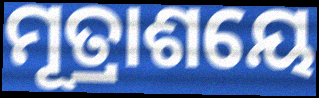
ମୂତ୍ରାଶୟେ